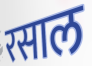
रसाल